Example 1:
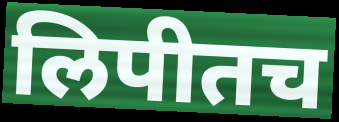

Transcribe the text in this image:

लिपीतच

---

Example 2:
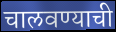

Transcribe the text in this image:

चालवण्याची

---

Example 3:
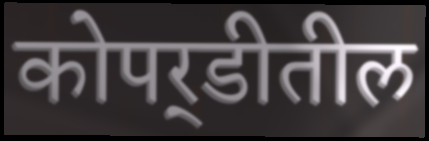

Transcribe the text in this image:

कोपर्डीतील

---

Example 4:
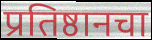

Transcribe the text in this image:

प्रतिष्ठानचा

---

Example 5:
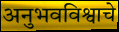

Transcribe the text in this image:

अनुभवविश्वाचे